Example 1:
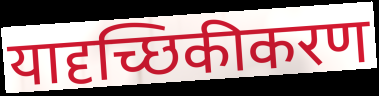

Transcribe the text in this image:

यादृच्छिकीकरण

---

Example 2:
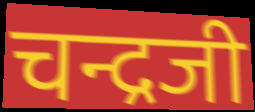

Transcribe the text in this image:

चन्द्रजी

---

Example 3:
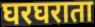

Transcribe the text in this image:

घरघराता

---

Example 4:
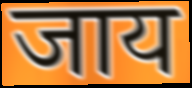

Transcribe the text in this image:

जाय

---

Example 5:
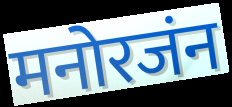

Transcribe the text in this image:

मनोरजंन